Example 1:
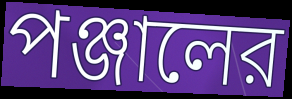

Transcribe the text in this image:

পঞ্জালের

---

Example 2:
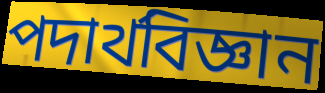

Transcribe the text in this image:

পদার্থবিজ্ঞান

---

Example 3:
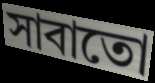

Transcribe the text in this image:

সাবাতো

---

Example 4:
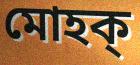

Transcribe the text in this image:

মোহক্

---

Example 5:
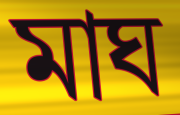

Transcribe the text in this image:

মাঘ